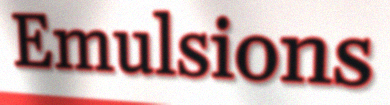
Emulsions